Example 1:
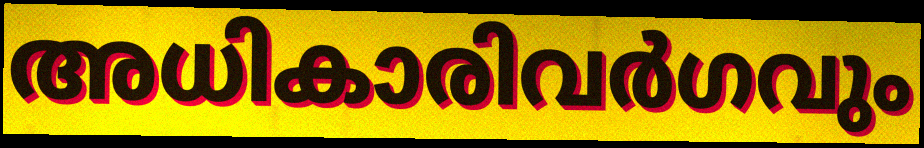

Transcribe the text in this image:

അധികാരിവർഗവും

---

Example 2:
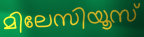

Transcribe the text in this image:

മിലേസിയൂസ്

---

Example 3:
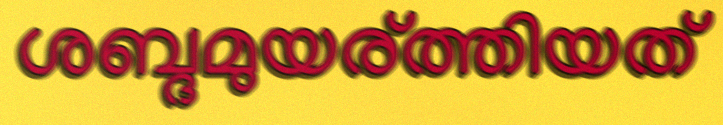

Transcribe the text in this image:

ശബ്ദമുയര്ത്തിയത്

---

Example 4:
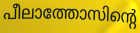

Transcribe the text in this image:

പീലാത്തോസിന്റെ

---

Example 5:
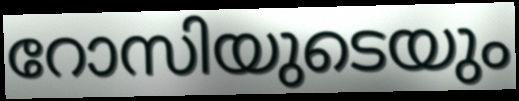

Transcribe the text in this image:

റോസിയുടെയും